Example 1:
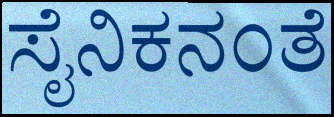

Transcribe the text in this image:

ಸೈನಿಕನಂತೆ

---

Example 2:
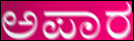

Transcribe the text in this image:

ಅಪಾರ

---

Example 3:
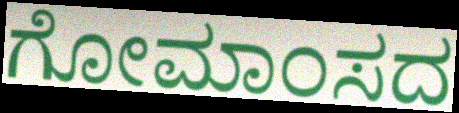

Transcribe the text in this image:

ಗೋಮಾಂಸದ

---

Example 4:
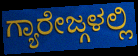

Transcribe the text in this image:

ಗ್ಯಾರೇಜ್ಗಳಲ್ಲಿ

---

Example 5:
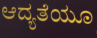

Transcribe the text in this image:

ಆದ್ಯತೆಯೂ